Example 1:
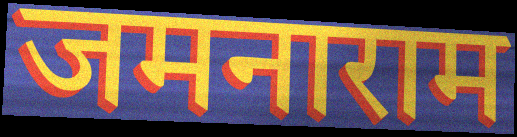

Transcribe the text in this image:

जमनाराम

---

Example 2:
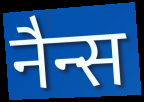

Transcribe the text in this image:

नैन्स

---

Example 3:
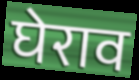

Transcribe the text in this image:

घेराव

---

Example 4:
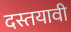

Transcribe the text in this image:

दस्तयावी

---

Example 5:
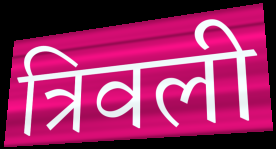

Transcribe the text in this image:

त्रिवली